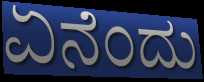
ಏನೆಂದು